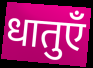
धातुएँ